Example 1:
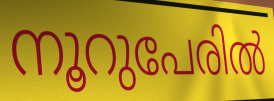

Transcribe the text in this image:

നൂറുപേരിൽ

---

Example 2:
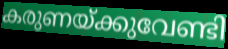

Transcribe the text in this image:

കരുണയ്ക്കുവേണ്ടി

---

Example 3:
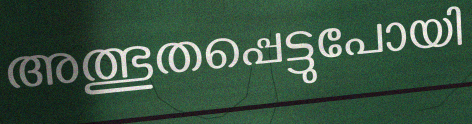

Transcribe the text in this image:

അത്ഭുതപ്പെട്ടുപോയി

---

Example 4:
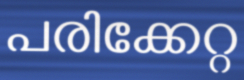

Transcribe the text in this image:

പരിക്കേറ്റ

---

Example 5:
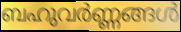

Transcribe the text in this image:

ബഹുവർണ്ണങ്ങൾ